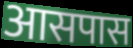
आसपास